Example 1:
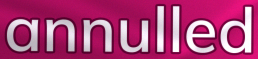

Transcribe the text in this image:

annulled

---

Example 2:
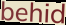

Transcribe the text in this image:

behid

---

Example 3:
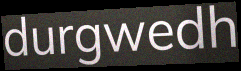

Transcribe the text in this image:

durgwedh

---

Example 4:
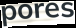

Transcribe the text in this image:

pores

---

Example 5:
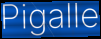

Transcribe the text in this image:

Pigalle